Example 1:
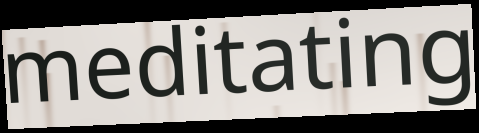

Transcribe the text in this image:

meditating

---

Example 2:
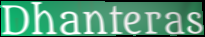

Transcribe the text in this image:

Dhanteras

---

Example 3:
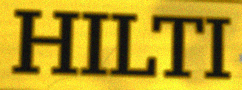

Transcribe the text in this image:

HILTI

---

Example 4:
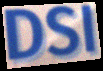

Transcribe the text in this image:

DSI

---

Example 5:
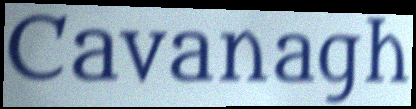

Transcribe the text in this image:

Cavanagh